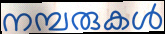
നമ്പരുകൾ